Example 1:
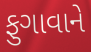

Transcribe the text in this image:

ફુગાવાને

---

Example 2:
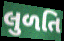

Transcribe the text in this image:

લુળતિ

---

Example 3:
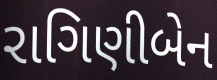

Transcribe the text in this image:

રાગિણીબેન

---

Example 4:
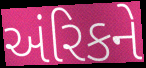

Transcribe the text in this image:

અંરિકને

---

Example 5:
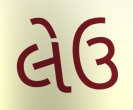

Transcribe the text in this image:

લેઉ